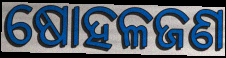
ଷୋହଳଜଣ